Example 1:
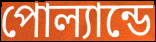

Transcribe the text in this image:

পোল্যান্ডে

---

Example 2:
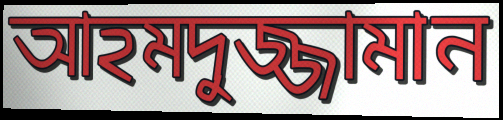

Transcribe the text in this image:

আহমদুজ্জামান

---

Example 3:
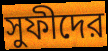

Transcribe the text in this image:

সুফীদের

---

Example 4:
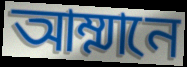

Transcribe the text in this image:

আম্মানে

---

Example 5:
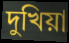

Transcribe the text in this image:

দুখিয়া